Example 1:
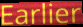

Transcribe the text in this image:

Earlier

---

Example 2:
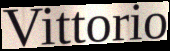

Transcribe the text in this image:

Vittorio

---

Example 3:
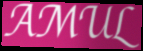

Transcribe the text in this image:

AMUL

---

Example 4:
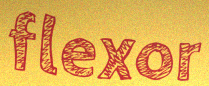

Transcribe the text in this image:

flexor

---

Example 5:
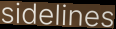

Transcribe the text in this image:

sidelines